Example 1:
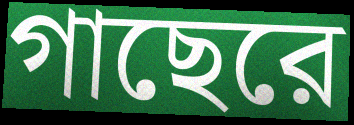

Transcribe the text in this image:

গাছেরে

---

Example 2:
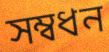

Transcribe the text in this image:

সম্বধন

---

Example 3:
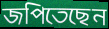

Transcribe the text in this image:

জপিতেছেন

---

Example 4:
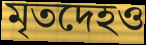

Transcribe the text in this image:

মৃতদেহও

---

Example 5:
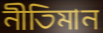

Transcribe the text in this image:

নীতিমান